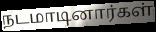
நடமாடினார்கள்